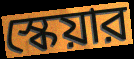
স্কেয়ার